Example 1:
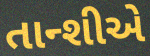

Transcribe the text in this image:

તાન્શીએ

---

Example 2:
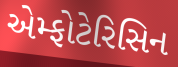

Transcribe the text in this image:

એમ્ફોટેરિસિન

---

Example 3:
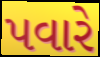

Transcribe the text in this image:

પવારે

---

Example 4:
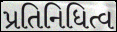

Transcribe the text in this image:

પ્રતિનિધિત્વ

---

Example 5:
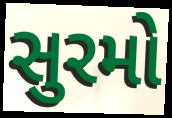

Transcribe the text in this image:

સુરમો